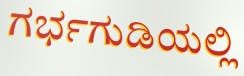
ಗರ್ಭಗುಡಿಯಲ್ಲಿ